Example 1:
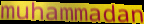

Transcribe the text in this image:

muhammadan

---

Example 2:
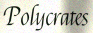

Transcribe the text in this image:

Polycrates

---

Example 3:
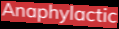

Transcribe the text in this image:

Anaphylactic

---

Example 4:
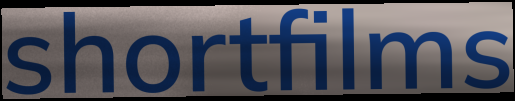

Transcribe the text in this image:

shortfilms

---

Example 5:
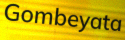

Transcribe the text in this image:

Gombeyata